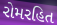
રોમરહિત